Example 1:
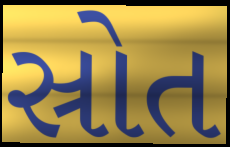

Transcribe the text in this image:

સ્રોત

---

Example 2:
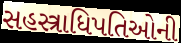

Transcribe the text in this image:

સહસ્ત્રાધિપતિઓની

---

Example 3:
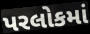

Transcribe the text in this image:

પરલોકમાં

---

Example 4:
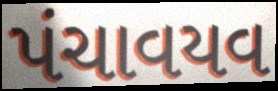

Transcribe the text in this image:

પંચાવયવ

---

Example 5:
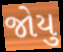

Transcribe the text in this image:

જોયુ